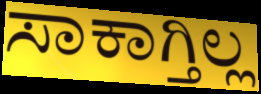
ಸಾಕಾಗ್ತಿಲ್ಲ